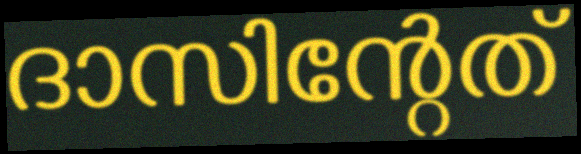
ദാസിന്റേത്